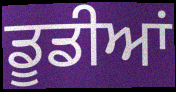
ਡੂਡੀਆਂ